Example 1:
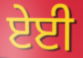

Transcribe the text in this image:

ਏਈ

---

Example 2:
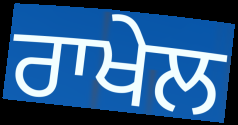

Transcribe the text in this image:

ਰਾਖੇਲ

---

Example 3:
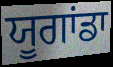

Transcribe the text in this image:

ਯੂਗਾਂਡਾ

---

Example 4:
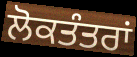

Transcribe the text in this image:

ਲੋਕਤੰਤਰਾਂ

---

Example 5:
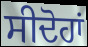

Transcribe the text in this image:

ਸੀਦੋਹਾਂ